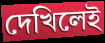
দেখিলেই